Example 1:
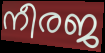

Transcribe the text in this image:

നീരജ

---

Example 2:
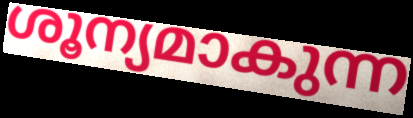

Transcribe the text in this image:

ശൂന്യമാകുന്ന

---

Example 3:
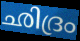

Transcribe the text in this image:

ഛിദ്രം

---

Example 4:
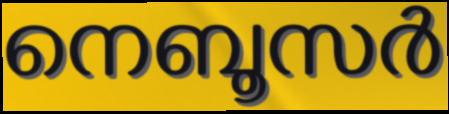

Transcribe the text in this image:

നെബൂസർ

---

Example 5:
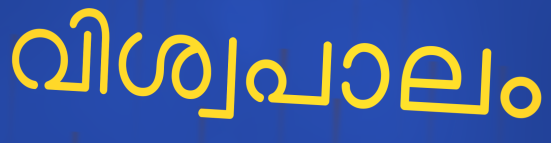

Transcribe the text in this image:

വിശ്വപാലം